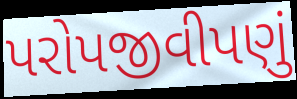
પરોપજીવીપણું